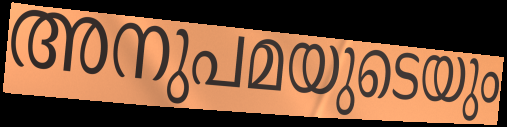
അനുപമയുടെയും